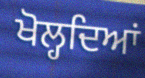
ਖੋਲ੍ਹਦਿਆਂ